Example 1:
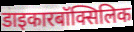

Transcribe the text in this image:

डाइकारबॉक्सिलिक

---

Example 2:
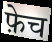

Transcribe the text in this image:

फ़ेच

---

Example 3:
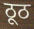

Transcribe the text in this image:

ठूठ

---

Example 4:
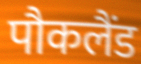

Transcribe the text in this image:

पौकलैंड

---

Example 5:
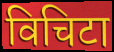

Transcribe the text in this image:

विचिटा